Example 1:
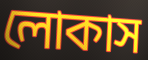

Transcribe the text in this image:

লোকাস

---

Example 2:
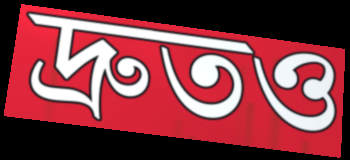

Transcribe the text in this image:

দ্রুতও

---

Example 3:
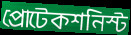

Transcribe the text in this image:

প্রোটেকশনিস্ট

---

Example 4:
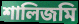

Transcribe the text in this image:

শালিজমি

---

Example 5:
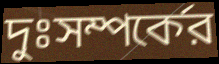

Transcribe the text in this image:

দুঃসম্পর্কের